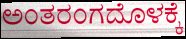
ಅಂತರಂಗದೊಳಕ್ಕೆ